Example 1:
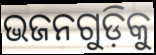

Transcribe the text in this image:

ଭଜନଗୁଡ଼ିକୁ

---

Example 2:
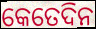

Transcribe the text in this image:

କେତେଦିନ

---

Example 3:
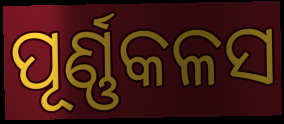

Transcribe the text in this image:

ପୂର୍ଣ୍ଣକଳସ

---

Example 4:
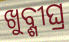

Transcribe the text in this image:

ଖୁବ୍ଶୀଘ୍ର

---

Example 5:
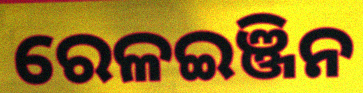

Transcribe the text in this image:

ରେଳଇଞ୍ଜିନ